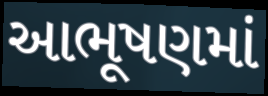
આભૂષણમાં